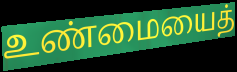
உண்மையைத்